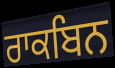
ਰਾਕਬਿਨ